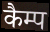
कैम्प